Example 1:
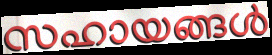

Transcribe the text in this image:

സഹായങ്ങൾ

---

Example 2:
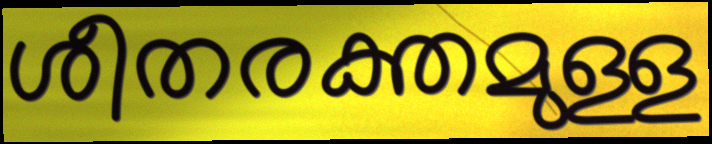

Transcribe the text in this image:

ശീതരക്തമുള്ള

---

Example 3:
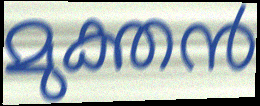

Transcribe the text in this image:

മുക്തൻ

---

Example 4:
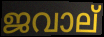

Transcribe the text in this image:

ജവാല്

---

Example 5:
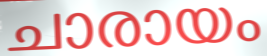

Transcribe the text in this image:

ചാരായം